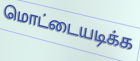
மொட்டையடிக்க